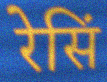
रेसिं